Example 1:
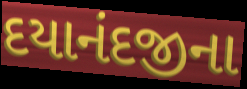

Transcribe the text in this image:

દયાનંદજીના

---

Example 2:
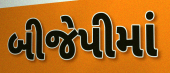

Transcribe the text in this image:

બીજેપીમાં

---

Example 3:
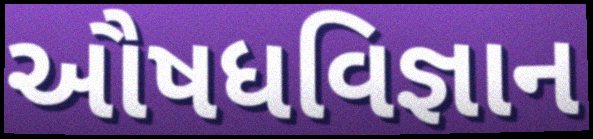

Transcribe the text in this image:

ઔષધવિજ્ઞાન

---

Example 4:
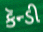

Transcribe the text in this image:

કૅન્ડી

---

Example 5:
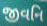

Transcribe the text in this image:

જીવનિ